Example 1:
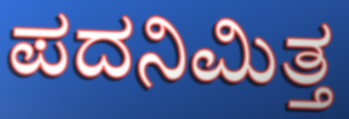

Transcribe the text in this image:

ಪದನಿಮಿತ್ತ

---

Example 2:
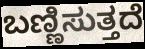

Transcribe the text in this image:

ಬಣ್ಣಿಸುತ್ತದೆ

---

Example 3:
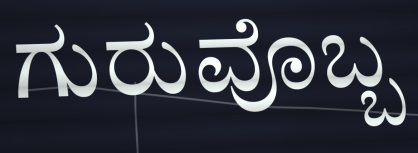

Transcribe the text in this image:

ಗುರುವೊಬ್ಬ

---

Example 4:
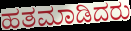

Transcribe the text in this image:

ಹತಮಾಡಿದರು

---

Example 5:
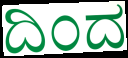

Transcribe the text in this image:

ದಿಂದ